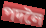
পদলৈ